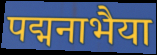
पद्मनाभैया